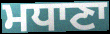
ਮਧਾਣਾ